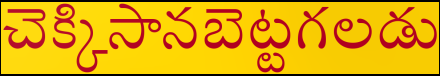
చెక్కిసానబెట్టగలడు